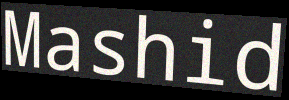
Mashid